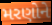
મરણોને